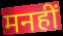
मनहीं